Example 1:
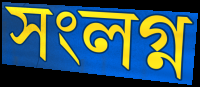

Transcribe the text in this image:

সংলগ্ন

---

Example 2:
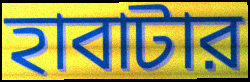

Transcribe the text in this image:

হাবাটার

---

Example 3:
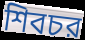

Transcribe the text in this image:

শিবচর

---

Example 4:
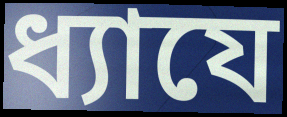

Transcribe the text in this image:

ধ্যাযে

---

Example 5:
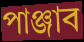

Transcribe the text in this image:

পাঞ্জাব